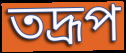
তদ্রূপ